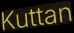
Kuttan